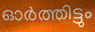
ഓർത്തിട്ടും